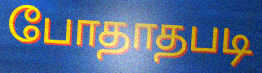
போதாதபடி